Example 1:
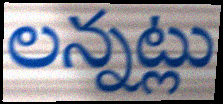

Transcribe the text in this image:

లన్నట్లు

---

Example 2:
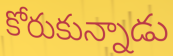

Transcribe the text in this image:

కోరుకున్నాడు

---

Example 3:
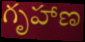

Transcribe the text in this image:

గృహాణ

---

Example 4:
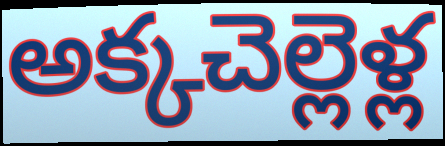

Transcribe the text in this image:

అక్కచెల్లెళ్ల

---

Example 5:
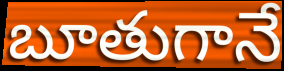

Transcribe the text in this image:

బూతుగానే